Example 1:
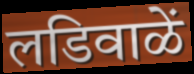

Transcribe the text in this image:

लडिवाळें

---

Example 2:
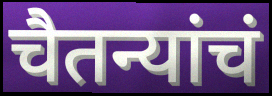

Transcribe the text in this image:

चैतन्यांचं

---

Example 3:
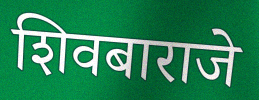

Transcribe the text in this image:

शिवबाराजे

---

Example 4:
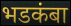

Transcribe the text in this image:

भडकंबा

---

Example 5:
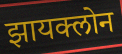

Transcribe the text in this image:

झायक्लोन